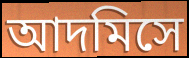
আদমিসে